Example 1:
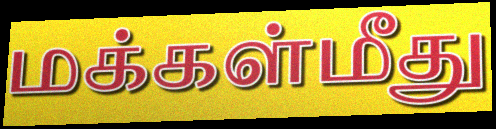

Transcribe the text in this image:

மக்கள்மீது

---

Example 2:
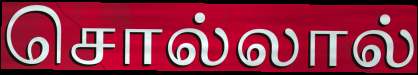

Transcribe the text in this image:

சொல்லால்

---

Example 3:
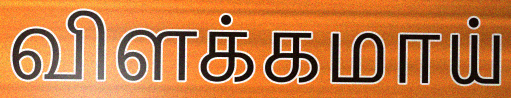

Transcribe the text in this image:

விளக்கமாய்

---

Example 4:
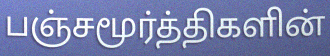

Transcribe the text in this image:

பஞ்சமூர்த்திகளின்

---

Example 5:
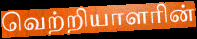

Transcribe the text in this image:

வெற்றியாளரின்